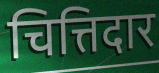
चित्तिदार